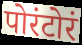
पोरंटोरं